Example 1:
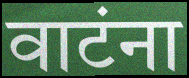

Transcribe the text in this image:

वाटंना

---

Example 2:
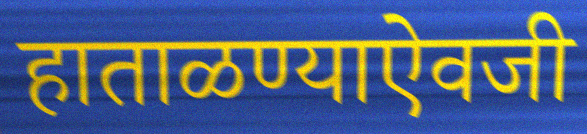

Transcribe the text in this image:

हाताळण्याऐवजी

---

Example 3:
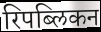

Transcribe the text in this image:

रिपब्लिकन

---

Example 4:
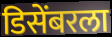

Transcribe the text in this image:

डिसेंबरला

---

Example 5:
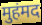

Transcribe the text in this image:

मुहंमद